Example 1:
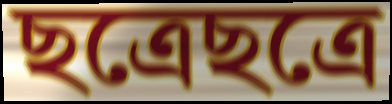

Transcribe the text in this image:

ছত্রেছত্রে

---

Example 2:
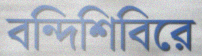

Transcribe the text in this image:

বন্দিশিবিরে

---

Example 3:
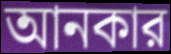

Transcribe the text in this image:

আনকার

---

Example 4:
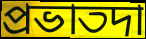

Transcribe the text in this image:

প্রভাতদা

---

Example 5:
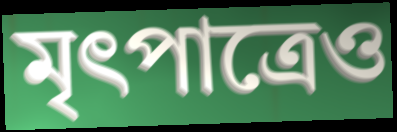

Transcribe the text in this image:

মৃৎপাত্রেও